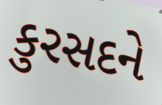
કુરસદને